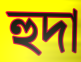
হুদা